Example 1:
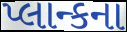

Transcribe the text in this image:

પ્લાન્કના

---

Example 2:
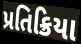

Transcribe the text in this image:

પ્રતિક્રિયા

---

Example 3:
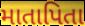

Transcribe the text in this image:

માતાપિતા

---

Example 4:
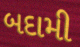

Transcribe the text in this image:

બદામી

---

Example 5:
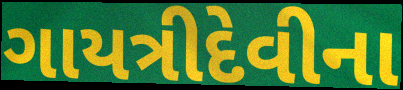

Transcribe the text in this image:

ગાયત્રીદેવીના